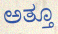
ಅತ್ತೂ